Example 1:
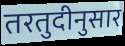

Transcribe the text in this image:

तरतुदीनुसार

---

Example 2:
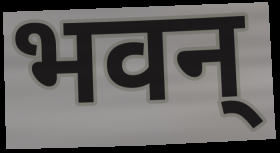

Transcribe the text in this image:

भवन्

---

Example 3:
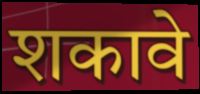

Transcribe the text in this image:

शकावे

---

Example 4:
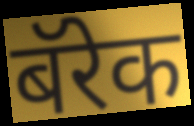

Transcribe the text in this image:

बॅरेक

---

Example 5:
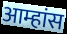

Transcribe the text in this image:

आम्हांस